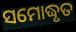
ସମୋଦ୍ଧୃତ